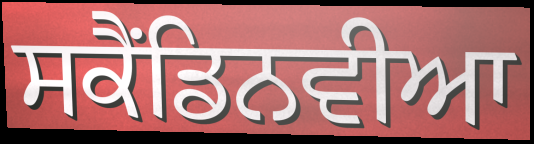
ਸਕੈਂਡਿਨਵੀਆ